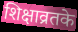
शिक्षाव्रतके